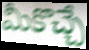
మీకొచ్చే